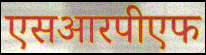
एसआरपीएफ